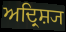
ਅਦ੍ਰਿਸ਼੍ਯ